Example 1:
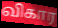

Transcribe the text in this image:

விகார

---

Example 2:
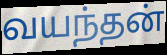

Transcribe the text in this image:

வயந்தன்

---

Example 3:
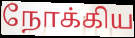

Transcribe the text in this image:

நோக்கிய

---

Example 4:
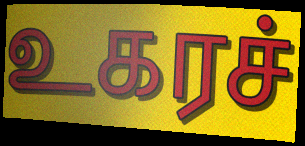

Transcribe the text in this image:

உகரச்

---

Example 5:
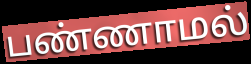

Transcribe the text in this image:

பண்ணாமல்